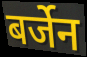
बर्जेन